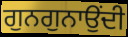
ਗੁਨਗੁਨਾਉਂਦੀ